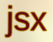
jsx